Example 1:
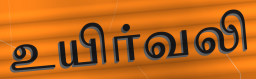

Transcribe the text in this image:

உயிர்வலி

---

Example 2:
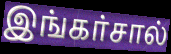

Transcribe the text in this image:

இங்கர்சால்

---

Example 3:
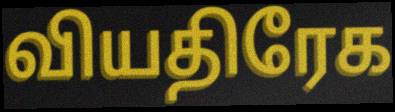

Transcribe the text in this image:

வியதிரேக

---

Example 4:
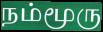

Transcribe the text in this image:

நம்மூரு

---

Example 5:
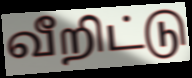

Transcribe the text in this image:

வீறிட்டு